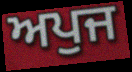
ਅਪੁਜ